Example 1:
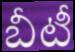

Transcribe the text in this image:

బీటీ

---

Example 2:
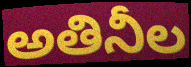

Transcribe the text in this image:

అతినీల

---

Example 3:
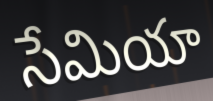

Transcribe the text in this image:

సేమియా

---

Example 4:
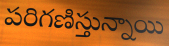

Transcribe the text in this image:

పరిగణిస్తున్నాయి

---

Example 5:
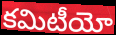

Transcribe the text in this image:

కమిటీయో